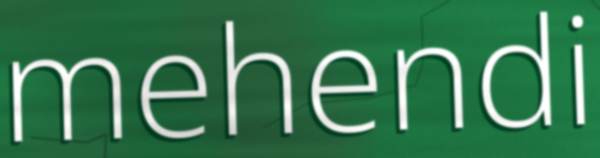
mehendi